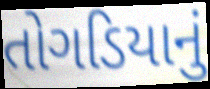
તોગડિયાનું